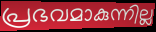
പ്രഭവമാകുന്നില്ല